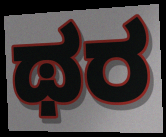
ಥರ